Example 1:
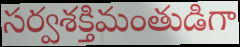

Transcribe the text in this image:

సర్వశక్తిమంతుడిగా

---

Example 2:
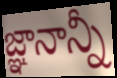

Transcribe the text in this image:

జ్ఞానాన్నీ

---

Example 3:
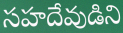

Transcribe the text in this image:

సహదేవుడిని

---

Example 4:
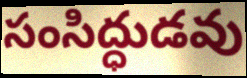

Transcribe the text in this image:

సంసిద్ధుడవు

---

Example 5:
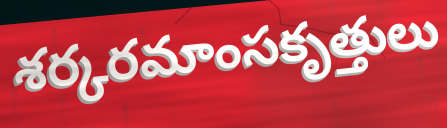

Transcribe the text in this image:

శర్కరమాంసకృత్తులు